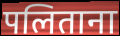
पलिताना